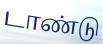
டாண்டு